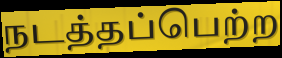
நடத்தப்பெற்ற